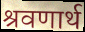
श्रवणार्थ